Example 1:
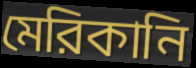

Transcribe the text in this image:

মেরিকানি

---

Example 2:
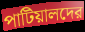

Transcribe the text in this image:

পাটিয়ালদের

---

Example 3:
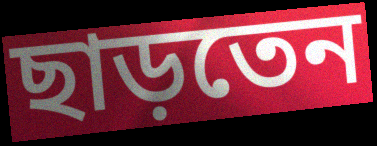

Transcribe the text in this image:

ছাড়তেন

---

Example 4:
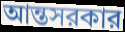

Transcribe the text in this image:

আন্তসরকার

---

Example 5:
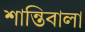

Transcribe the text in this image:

শান্তিবালা